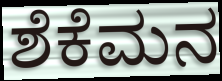
ಶೆಕೆಮನ